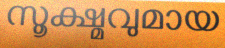
സൂക്ഷ്മവുമായ